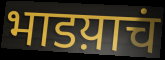
भाडय़ाचं